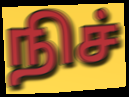
நிச்